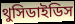
থুসিডাইডিস